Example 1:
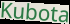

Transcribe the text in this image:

Kubota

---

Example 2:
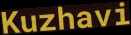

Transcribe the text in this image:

Kuzhavi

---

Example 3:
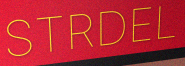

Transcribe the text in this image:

STRDEL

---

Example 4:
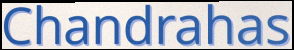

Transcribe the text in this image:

Chandrahas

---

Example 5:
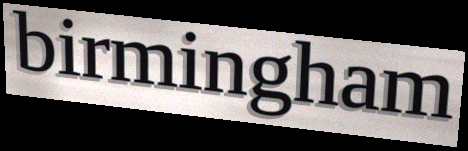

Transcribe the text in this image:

birmingham